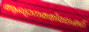
ആഖ്യാനത്തിലേക്ക്